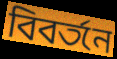
বিবর্তনে